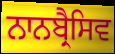
ਨਾਨਬ੍ਰੈਸਿਵ